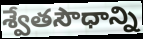
శ్వేతసౌధాన్ని